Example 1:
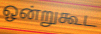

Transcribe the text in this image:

ஒன்றுகூட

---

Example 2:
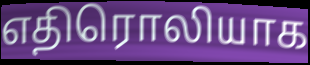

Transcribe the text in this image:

எதிரொலியாக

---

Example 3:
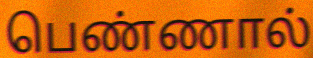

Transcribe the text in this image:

பெண்ணால்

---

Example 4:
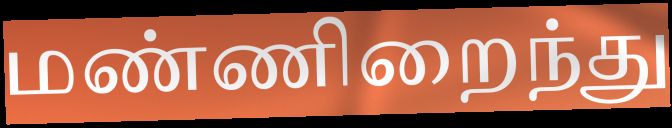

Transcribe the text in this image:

மண்ணிறைந்து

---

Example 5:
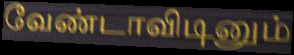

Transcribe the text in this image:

வேண்டாவிடினும்